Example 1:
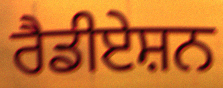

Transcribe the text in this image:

ਰੈਡੀਏਸ਼ਨ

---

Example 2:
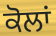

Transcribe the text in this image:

ਕੋਲਾਂ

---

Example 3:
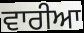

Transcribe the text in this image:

ਵਾਰੀਆ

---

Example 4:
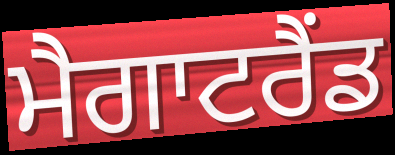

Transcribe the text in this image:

ਮੈਗਾਟਰੈਂਡ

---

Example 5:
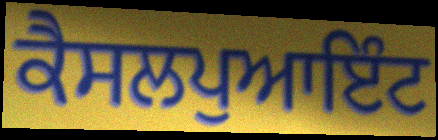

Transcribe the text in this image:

ਕੈਸਲਪੁਆਇੰਟ